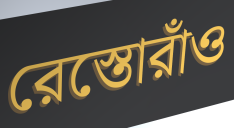
রেস্তোরাঁও